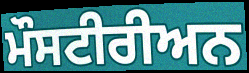
ਮੌਸਟੀਰੀਅਨ